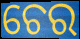
ଚେର